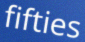
fifties